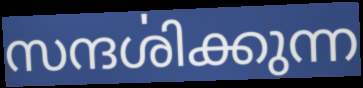
സന്ദൎശിക്കുന്ന